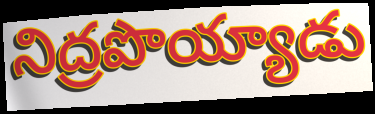
నిద్రపొయ్యాడు